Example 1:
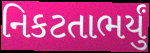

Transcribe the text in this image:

નિકટતાભર્યું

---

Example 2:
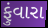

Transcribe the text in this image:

ફુંવારા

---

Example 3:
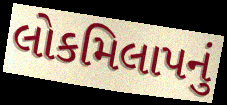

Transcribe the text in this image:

લોકમિલાપનું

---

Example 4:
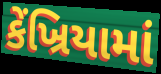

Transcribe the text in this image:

કેંખ્રિયામાં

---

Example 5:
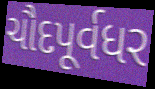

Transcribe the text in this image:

ચૌદપૂર્વધર